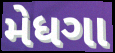
મેધગા